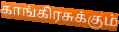
காங்கிரசுக்கும்